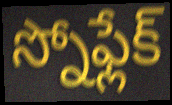
స్నోఫ్లేక్